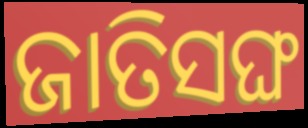
ଜାତିସଙ୍ଘ